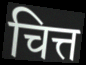
चित्त